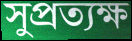
সুপ্রত্যক্ষ